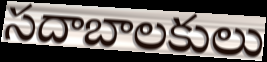
సదాబాలకులు